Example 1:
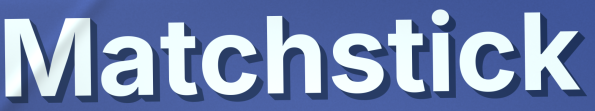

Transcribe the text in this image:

Matchstick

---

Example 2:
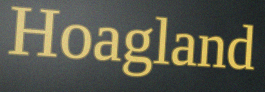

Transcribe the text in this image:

Hoagland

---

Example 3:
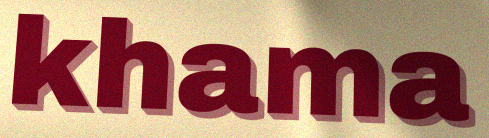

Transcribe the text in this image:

khama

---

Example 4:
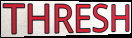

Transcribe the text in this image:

THRESH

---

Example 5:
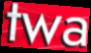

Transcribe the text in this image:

twa